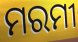
ମରମୀ